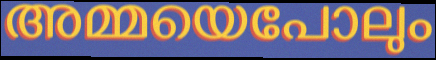
അമ്മയെപോലും